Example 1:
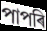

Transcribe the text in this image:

পাপৰি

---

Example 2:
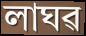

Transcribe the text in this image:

লাঘৱ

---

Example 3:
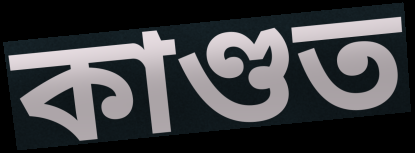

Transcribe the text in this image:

কাণ্ডত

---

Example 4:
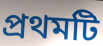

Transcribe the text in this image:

প্ৰথমটি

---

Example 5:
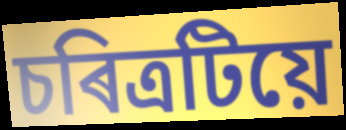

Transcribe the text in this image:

চৰিত্ৰটিয়ে